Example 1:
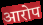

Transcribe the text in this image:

आरोप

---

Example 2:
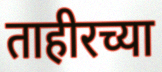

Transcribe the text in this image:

ताहीरच्या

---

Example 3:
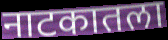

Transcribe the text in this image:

नाटकातला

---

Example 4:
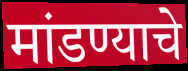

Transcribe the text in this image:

मांडण्याचे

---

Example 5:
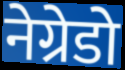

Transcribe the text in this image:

नेग्रेडो